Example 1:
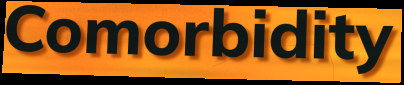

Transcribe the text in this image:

Comorbidity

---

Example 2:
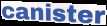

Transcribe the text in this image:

canister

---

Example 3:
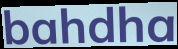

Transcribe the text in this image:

bahdha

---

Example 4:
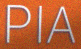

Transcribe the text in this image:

PIA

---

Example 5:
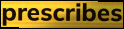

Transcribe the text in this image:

prescribes